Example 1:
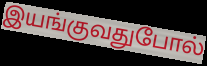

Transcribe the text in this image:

இயங்குவதுபோல்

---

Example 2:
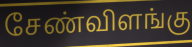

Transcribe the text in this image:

சேண்விளங்கு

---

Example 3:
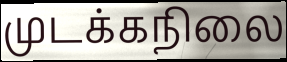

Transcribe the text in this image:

முடக்கநிலை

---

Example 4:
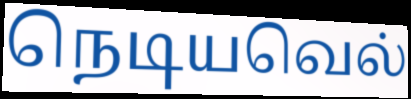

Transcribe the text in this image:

நெடியவெல்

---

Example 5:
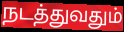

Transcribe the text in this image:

நடத்துவதும்